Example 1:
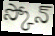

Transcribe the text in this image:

స్కోన్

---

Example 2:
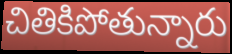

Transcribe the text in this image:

చితికిపోతున్నారు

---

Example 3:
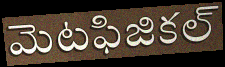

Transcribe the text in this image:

మెటఫిజికల్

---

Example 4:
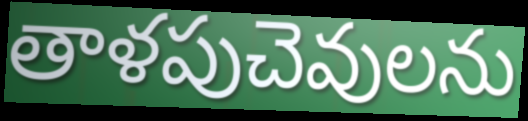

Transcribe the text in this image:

తాళపుచెవులను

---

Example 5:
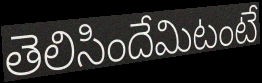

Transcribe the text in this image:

తెలిసిందేమిటంటే